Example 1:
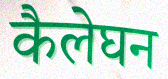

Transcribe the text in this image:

कैलेघन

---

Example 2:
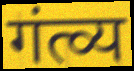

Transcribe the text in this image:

गंत्व्य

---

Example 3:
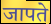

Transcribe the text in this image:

जापते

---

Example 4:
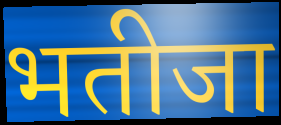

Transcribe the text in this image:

भतीजा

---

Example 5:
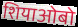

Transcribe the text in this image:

शियाओबो